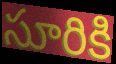
సూరికి